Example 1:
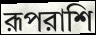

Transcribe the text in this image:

রূপরাশি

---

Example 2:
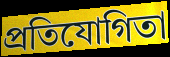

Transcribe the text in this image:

প্রতিযোগিতা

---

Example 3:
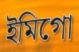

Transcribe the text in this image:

ইমিগো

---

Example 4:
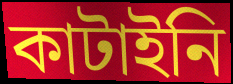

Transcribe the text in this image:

কাটাইনি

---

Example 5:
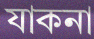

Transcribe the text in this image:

যাকনা